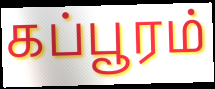
கப்பூரம்